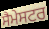
ਸੈਮੇਸਟਰ